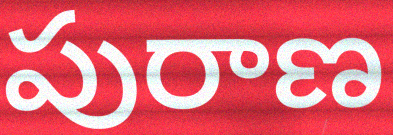
పురాణ